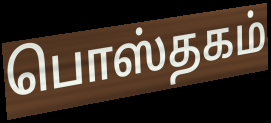
பொஸ்தகம்